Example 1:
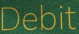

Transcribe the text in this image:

Debit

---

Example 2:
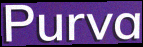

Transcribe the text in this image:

Purva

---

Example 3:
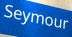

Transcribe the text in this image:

Seymour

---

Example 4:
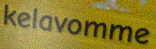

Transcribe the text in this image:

kelavomme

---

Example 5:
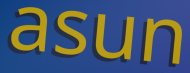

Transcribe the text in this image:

asun